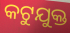
କଟୁଯୁକ୍ତ